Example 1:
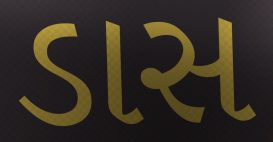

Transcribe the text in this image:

ડાસ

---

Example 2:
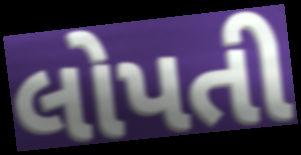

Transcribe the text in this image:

લોપતી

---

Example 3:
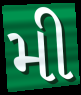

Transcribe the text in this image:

મી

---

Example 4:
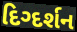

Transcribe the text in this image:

દિગ્દર્શન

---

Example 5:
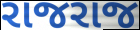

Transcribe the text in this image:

રાજરાજ